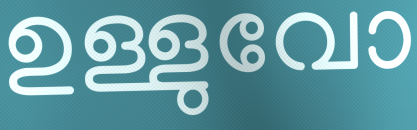
ഉള്ളുവോ